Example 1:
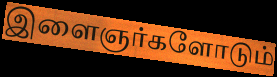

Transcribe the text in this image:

இளைஞர்களோடும்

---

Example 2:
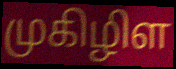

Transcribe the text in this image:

முகிழிள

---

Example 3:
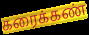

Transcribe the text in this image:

கரைக்கண்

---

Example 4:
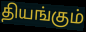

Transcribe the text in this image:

தியங்கும்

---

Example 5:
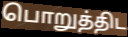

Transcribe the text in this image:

பொறுத்திட